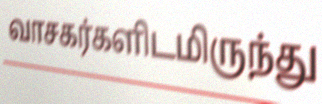
வாசகர்களிடமிருந்து